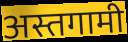
अस्तगामी